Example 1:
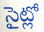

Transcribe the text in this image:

సైట్లో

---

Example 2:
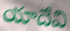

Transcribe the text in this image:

యాదేవి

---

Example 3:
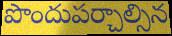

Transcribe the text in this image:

పొందుపర్చాల్సిన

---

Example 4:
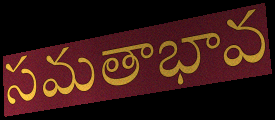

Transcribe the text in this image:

సమతాభావ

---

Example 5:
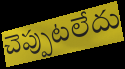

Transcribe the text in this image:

చెప్పుటలేదు